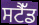
ਸਟੈੱਡ